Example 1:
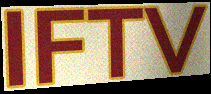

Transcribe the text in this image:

IFTV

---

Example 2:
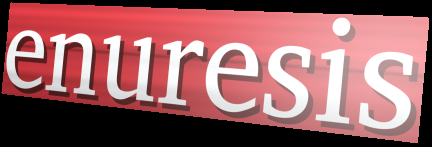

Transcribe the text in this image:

enuresis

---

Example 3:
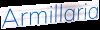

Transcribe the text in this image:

Armillaria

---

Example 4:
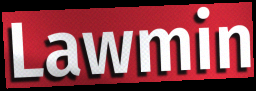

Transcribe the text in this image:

Lawmin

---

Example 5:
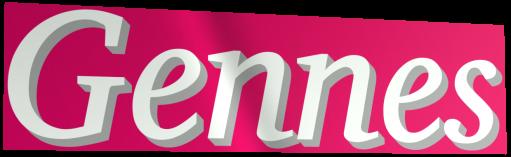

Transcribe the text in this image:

Gennes